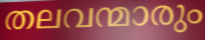
തലവന്മാരും